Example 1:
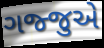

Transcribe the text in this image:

ગજ્જુએ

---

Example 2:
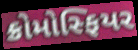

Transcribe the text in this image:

ક્રોમોસ્ફિયર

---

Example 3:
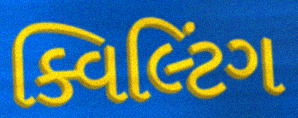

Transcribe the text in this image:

ક્વિલ્ટિંગ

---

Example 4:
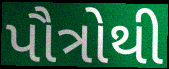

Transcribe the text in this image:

પૌત્રોથી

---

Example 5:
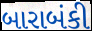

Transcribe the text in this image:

બારાબંકી